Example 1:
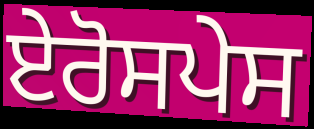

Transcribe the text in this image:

ਏਰੋਸਪੇਸ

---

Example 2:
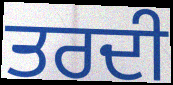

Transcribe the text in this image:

ਤਰਦੀ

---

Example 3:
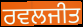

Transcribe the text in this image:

ਰਵਲਜੀਤ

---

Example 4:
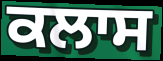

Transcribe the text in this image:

ਕਲਾਸ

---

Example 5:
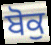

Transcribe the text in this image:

ਬੋਕੁ